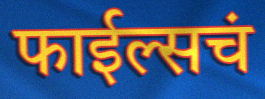
फाईल्सचं